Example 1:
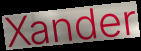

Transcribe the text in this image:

Xander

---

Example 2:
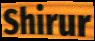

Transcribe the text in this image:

Shirur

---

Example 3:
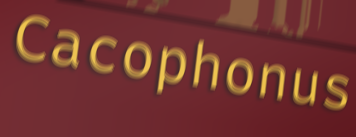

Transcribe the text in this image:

Cacophonus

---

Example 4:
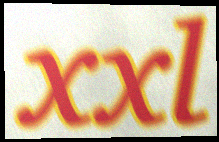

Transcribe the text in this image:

xxl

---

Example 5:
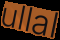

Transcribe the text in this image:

ullal